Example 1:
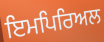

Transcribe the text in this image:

ਇਮਪਿਰਿਅਲ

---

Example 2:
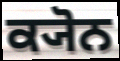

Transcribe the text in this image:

ਕ੍ਯੋਨ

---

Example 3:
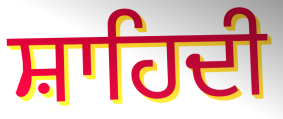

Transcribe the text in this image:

ਸ਼ਾਹਿਦੀ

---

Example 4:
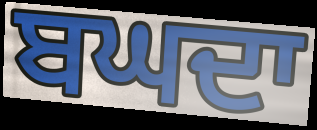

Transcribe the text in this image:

ਬਘਦਾ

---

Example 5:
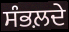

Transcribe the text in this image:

ਸੰਭਲ਼ਦੇ